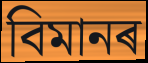
বিমানৰ